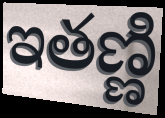
ఇతణ్ణి